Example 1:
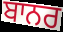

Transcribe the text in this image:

ਬਾਨਰ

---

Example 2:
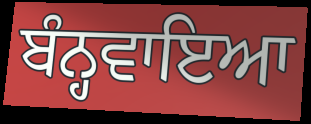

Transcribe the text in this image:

ਬੰਨ੍ਹਵਾਇਆ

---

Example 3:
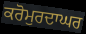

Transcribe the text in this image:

ਕਰੋਮੁਰਦਾਘਰ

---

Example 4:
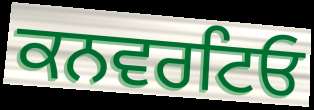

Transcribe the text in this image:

ਕਨਵਰਟਿਓ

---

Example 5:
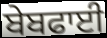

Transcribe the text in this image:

ਬੇਬਫਾਈ